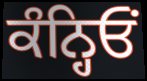
ਕੰਨ੍ਹਿਓਂ